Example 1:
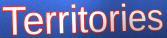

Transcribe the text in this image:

Territories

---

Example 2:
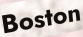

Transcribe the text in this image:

Boston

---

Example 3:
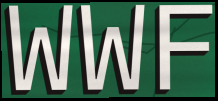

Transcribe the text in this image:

WWF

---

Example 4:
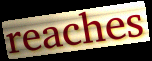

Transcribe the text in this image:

reaches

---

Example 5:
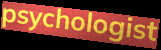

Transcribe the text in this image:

psychologist